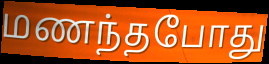
மணந்தபோது